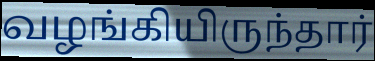
வழங்கியிருந்தார்